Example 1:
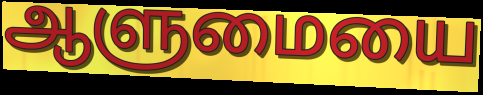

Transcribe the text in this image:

ஆளுமையை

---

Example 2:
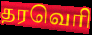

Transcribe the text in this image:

தரவெரி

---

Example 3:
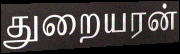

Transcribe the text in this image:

துறையரன்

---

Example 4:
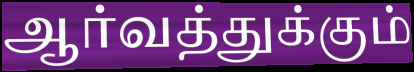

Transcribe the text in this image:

ஆர்வத்துக்கும்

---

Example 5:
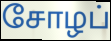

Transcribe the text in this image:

சோழப்